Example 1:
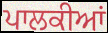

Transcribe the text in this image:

ਪਾਲਕੀਆਂ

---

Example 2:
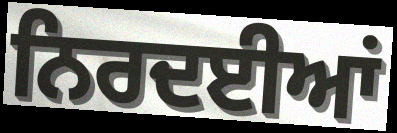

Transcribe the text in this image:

ਨਿਰਦਈਆਂ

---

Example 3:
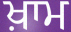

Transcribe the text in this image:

ਖ਼ਾਮ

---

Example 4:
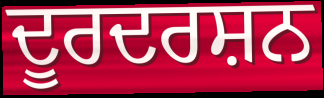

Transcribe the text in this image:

ਦੂਰਦਰਸ਼ਨ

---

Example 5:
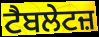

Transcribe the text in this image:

ਟੈਬਲੇਟਜ਼